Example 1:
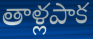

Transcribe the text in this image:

తాళ్లపాక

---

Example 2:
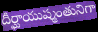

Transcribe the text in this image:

దీర్ఘాయుష్మంతునిగా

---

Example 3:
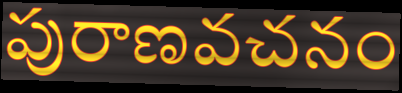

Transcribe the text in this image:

పురాణవచనం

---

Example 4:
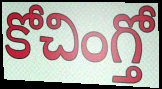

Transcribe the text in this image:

కోచింగ్తో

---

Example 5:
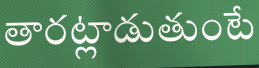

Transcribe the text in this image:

తారట్లాడుతుంటే